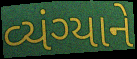
વ્યંગ્યાને